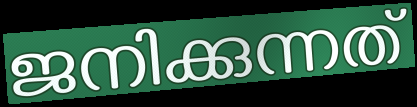
ജനിക്കുന്നത്